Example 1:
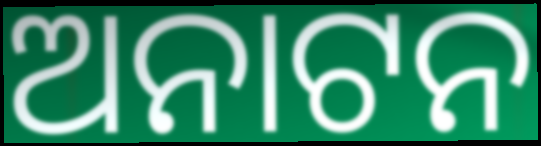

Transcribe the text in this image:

ଅନାଟନ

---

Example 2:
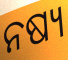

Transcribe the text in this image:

ନଷ୍ଯ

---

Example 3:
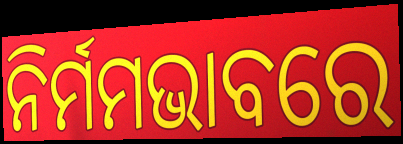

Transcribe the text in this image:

ନିର୍ମମଭାବରେ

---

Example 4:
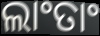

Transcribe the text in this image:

ଲାଂତାଂ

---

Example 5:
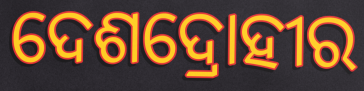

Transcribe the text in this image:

ଦେଶଦ୍ରୋହୀର